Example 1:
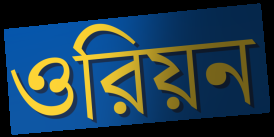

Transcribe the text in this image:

ওরিয়ন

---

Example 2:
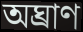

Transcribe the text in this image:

অঘ্রাণ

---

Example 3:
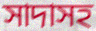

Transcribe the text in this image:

সাদাসহ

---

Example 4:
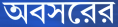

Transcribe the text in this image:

অবসরের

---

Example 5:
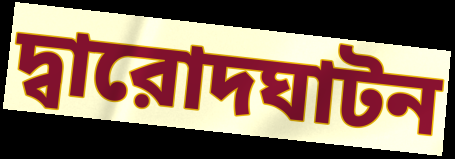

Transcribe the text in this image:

দ্বারোদঘাটন